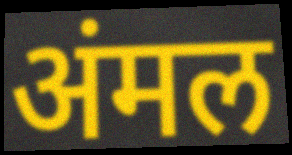
अंमल